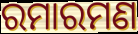
ରମାରମଣ